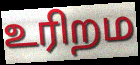
உரிறம